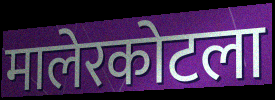
मालेरकोटला